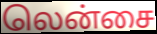
லென்சை